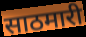
साठमारी